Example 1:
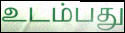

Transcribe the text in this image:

உடம்பது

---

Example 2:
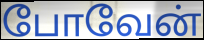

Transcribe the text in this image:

போவேன்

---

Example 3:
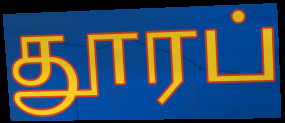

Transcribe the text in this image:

தூரப்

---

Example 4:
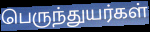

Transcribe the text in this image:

பெருந்துயர்கள்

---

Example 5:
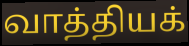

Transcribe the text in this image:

வாத்தியக்